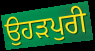
ਉਹੜਪੁਰੀ